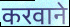
करवाने